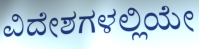
ವಿದೇಶಗಳಲ್ಲಿಯೇ